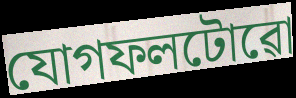
যোগফলটোৱো